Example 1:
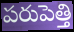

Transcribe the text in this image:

పరుపెత్తి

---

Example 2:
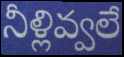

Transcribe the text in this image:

నీళ్లివ్వలే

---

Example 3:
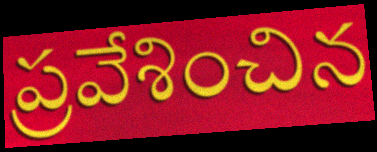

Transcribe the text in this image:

ప్రవేశించిన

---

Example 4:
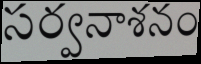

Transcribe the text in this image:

సర్వనాశనం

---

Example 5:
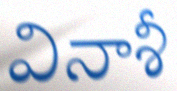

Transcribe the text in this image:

వినాశీ